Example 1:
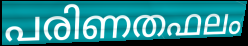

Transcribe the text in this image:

പരിണതഫലം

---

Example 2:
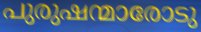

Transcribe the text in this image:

പുരുഷന്മാരോടു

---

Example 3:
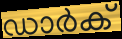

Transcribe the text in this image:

ഡാർക്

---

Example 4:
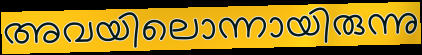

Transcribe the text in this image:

അവയിലൊന്നായിരുന്നു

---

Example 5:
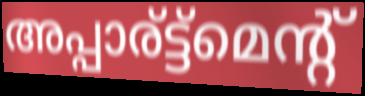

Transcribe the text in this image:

അപ്പാര്ട്ട്മെന്റ്